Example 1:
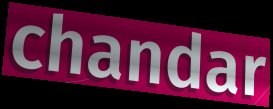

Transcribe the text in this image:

chandar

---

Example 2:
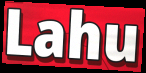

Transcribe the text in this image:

Lahu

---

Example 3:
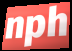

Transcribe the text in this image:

nph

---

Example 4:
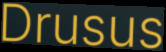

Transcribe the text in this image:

Drusus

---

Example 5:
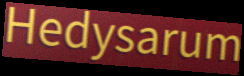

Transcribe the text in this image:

Hedysarum